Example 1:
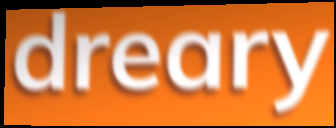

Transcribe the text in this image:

dreary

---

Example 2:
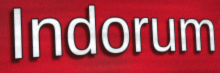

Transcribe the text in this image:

Indorum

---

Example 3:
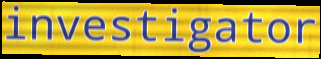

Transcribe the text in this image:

investigator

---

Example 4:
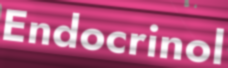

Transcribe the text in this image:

Endocrinol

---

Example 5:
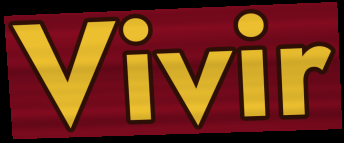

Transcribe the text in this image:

Vivir